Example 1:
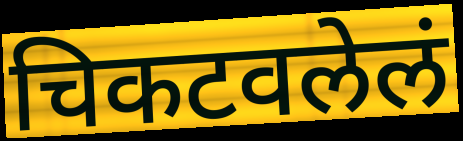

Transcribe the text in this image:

चिकटवलेलं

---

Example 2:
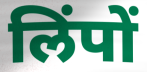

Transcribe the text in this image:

लिंपों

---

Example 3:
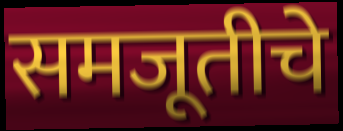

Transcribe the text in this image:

समजूतीचे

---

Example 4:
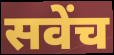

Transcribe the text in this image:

सवेंच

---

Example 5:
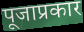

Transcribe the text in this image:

पूजाप्रकार